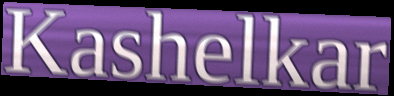
Kashelkar